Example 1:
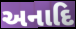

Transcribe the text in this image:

અનાદિ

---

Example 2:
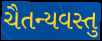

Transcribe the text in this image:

ચૈતન્યવસ્તુ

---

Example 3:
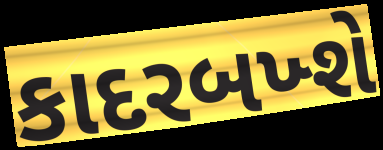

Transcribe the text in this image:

કાદરબખ્શે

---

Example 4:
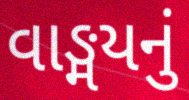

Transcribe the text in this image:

વાઙ્મયનું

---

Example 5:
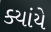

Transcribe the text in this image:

ક્યાંયે